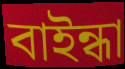
বাইন্ধা